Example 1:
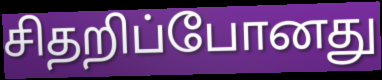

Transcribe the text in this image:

சிதறிப்போனது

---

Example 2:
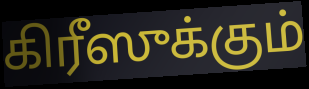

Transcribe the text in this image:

கிரீஸுக்கும்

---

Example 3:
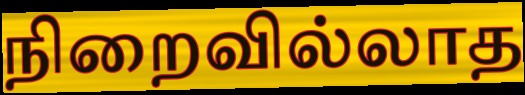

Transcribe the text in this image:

நிறைவில்லாத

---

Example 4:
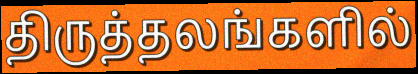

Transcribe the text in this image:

திருத்தலங்களில்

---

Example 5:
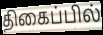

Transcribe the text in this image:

திகைப்பில்